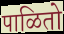
पाळितो